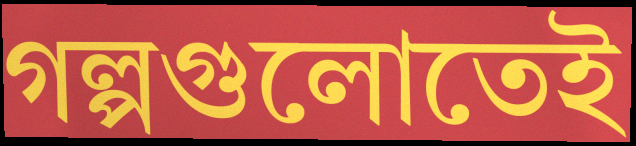
গল্পগুলোতেই